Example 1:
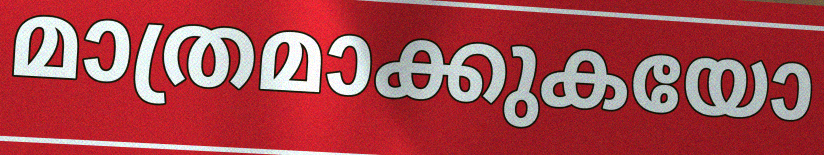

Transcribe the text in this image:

മാത്രമാക്കുകയോ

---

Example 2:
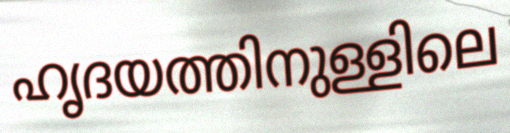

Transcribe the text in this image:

ഹൃദയത്തിനുള്ളിലെ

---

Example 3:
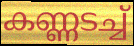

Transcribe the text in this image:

കണ്ണടച്ച്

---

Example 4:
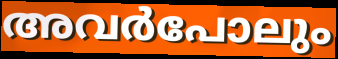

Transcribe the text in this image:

അവർപോലും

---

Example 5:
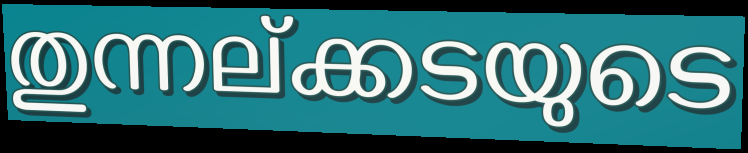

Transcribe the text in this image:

തുന്നല്ക്കടയുടെ